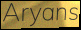
Aryans